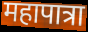
महापात्रा